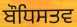
ਬੌਧਿਸਤਵ